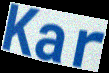
Kar